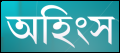
অহিংস